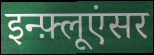
इन्फ़्लूएंसर